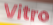
Vitro